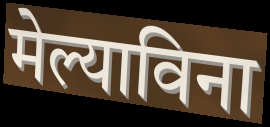
मेल्याविना